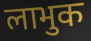
लाभुक